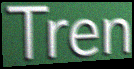
Tren